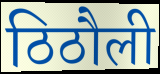
ठिठौली